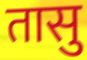
तासु